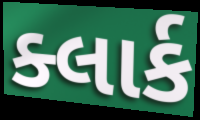
ક્લાર્ક